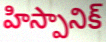
హిస్పానిక్